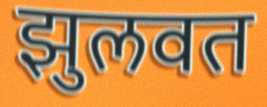
झुलवत